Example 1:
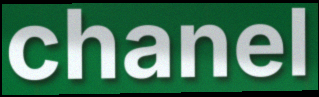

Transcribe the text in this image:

chanel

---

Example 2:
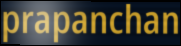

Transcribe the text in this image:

prapanchan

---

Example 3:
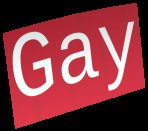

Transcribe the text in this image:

Gay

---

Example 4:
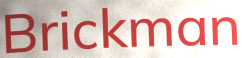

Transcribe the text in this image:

Brickman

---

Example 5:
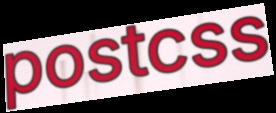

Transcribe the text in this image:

postcss